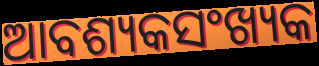
ଆବଶ୍ୟକସଂଖ୍ୟକ